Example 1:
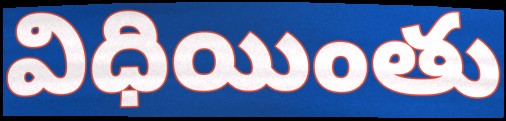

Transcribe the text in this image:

విధియింతు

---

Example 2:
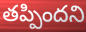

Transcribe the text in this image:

తప్పిందని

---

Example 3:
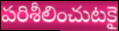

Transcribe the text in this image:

పరిశీలించుటకై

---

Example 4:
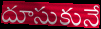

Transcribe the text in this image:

దూసుకునే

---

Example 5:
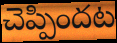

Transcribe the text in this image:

చెప్పిందట